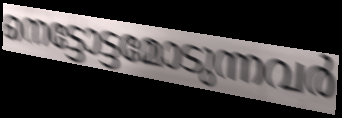
നെട്ടോട്ടമോടുന്നവർ